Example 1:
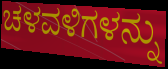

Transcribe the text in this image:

ಚಳವಳಿಗಳನ್ನು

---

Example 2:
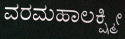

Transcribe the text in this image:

ವರಮಹಾಲಕ್ಷ್ಮೀ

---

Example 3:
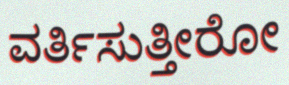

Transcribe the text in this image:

ವರ್ತಿಸುತ್ತೀರೋ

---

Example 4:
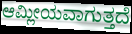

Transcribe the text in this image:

ಆಮ್ಲೀಯವಾಗುತ್ತದೆ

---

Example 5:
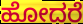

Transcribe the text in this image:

ಹೋದರೆ